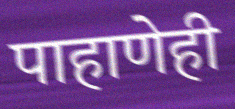
पाहाणेही